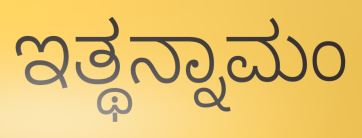
ಇತ್ಥನ್ನಾಮಂ